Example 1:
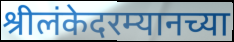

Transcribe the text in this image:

श्रीलंकेदरम्यानच्या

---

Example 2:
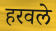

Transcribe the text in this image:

हरवले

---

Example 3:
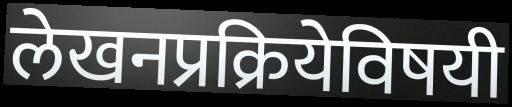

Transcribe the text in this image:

लेखनप्रक्रियेविषयी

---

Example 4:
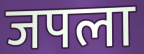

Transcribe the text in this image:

जपला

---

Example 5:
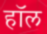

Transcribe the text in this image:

हॉल